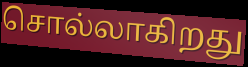
சொல்லாகிறது